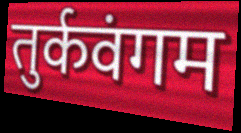
तुर्कवंगम